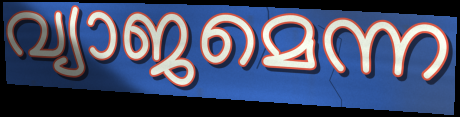
വ്യാജമെന്ന